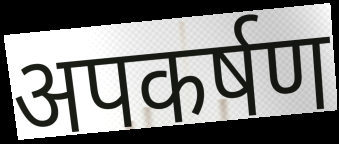
अपकर्षण